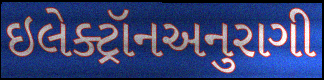
ઇલેક્ટ્રૉનઅનુરાગી